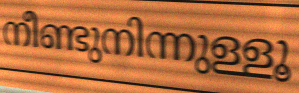
നീണ്ടുനിന്നുള്ളൂ